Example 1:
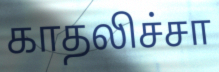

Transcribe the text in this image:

காதலிச்சா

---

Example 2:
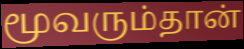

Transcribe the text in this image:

மூவரும்தான்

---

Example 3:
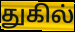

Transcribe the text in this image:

துகில்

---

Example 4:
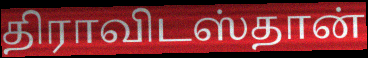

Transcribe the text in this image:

திராவிடஸ்தான்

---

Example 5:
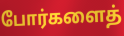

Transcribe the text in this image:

போர்களைத்